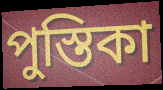
পুস্তিকা